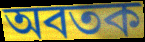
অবতক